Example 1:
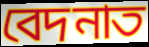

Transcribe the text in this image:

বেদনাত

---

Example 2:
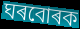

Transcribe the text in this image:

ঘৰবোৰক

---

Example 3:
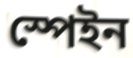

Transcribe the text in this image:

স্পেইন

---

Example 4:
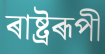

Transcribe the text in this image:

ৰাষ্ট্ৰৰূপী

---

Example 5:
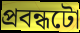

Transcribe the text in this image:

প্ৰবন্ধটো